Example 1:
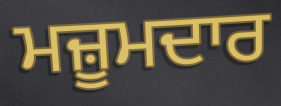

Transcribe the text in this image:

ਮਜ਼ੂਮਦਾਰ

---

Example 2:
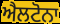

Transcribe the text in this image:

ਐਲਟੋਨਾ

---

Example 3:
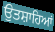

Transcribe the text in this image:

ਉਤਸ਼ਾਹਿਆਂ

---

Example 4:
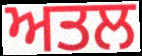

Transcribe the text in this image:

ਅਤਲ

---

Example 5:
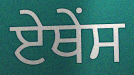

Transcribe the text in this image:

ਏਥੇੰਸ